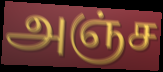
அஞ்ச